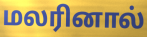
மலரினால்